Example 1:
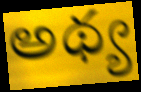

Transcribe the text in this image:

అథ్య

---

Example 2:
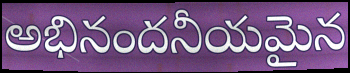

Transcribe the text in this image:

అభినందనీయమైన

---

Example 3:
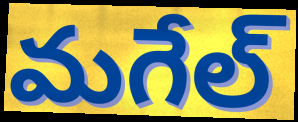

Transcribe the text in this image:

మగేల్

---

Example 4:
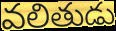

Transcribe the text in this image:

వలితుడు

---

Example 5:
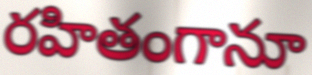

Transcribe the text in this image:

రహితంగానూ